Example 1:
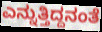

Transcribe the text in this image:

ಎನ್ನುತ್ತಿದ್ದನಂತೆ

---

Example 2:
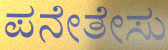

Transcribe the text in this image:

ಪನೇತೇಸು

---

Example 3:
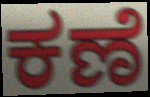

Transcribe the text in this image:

ಕಣೆ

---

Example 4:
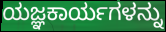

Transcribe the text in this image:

ಯಜ್ಞಕಾರ್ಯಗಳನ್ನು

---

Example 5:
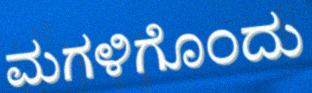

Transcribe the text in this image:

ಮಗಳಿಗೊಂದು